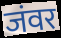
जंवर